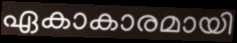
ഏകാകാരമായി